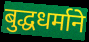
बुद्धधर्माने